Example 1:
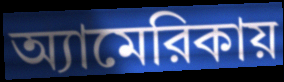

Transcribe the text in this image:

অ্যামেরিকায়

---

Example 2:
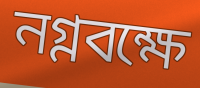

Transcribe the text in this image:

নগ্নবক্ষে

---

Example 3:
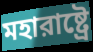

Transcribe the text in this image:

মহারাষ্ট্রে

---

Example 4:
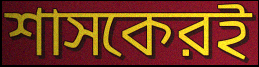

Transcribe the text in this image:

শাসকেরই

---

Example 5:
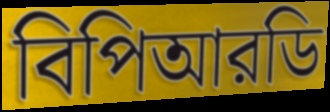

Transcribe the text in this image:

বিপিআরডি